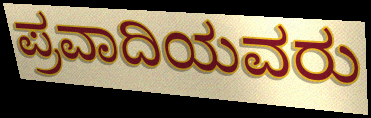
ಪ್ರವಾದಿಯವರು